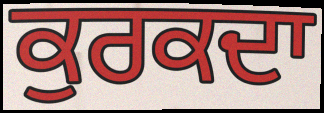
ਕੁਰਕਦਾ